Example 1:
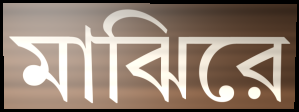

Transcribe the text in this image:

মাঝিরে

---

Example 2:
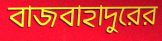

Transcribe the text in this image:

বাজবাহাদুরের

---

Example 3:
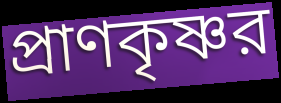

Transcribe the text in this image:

প্রাণকৃষ্ণর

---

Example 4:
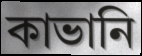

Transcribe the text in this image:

কাভানি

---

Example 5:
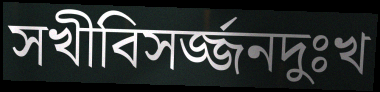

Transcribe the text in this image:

সখীবিসর্জ্জনদুঃখ